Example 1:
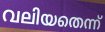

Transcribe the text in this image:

വലിയതെന്ന്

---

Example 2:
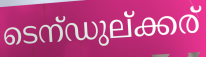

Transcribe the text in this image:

ടെന്ഡുല്ക്കര്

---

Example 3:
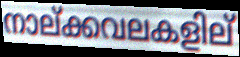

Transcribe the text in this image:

നാല്ക്കവലകളില്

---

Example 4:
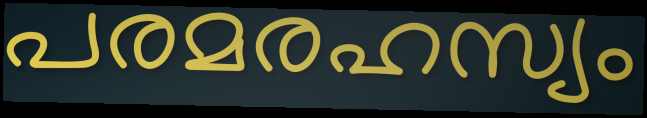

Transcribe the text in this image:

പരമരഹസ്യം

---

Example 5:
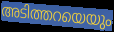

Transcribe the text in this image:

അടിത്തറയെയും